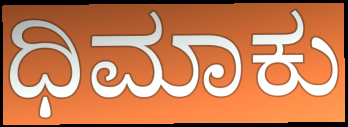
ಧಿಮಾಕು